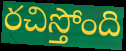
రచిస్తోంది